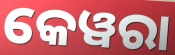
କେୱରା